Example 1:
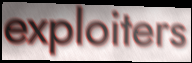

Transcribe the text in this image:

exploiters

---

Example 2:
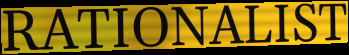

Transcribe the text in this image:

RATIONALIST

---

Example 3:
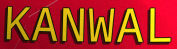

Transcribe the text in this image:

KANWAL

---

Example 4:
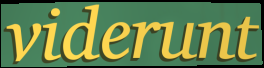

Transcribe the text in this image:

viderunt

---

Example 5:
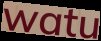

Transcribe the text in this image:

watu